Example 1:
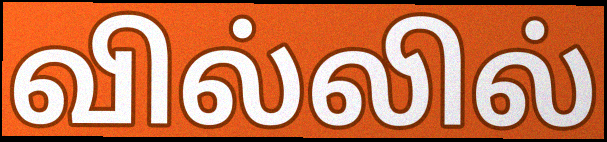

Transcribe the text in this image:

வில்லில்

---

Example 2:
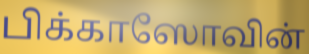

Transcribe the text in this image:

பிக்காஸோவின்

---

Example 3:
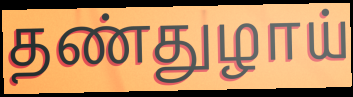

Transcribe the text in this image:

தண்துழாய்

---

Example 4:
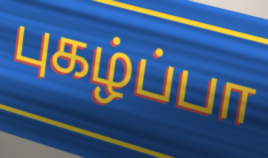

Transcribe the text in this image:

புகழ்ப்பா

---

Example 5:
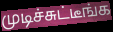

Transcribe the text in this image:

முடிச்சுட்டீங்க